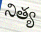
నిత్య